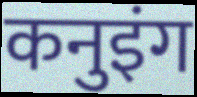
कनुइंग